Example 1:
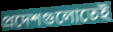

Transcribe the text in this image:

প্রদেশগুলোতেই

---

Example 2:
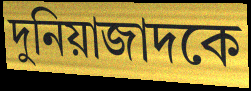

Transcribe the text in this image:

দুনিয়াজাদকে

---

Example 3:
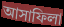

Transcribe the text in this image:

আসাফিলা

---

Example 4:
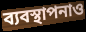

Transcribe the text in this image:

ব্যবস্থাপনাও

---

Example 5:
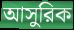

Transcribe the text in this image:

আসুরিক